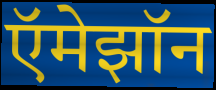
ऍमेझॉन